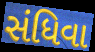
સંધિવા